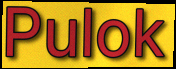
Pulok